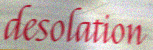
desolation